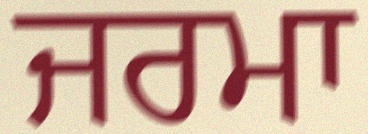
ਜਰਮਾ